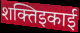
शक्तिइकाई